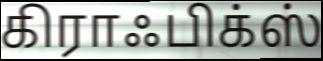
கிராஃபிக்ஸ்